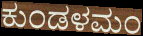
ಕುಂಡಳಮಂ